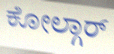
ಕೋಲ್ಗಾರ್